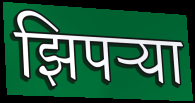
झिपऱ्या